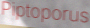
Piptoporus